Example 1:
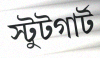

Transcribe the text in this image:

স্টুটগার্ট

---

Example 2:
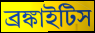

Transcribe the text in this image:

ব্রঙ্কাইটিস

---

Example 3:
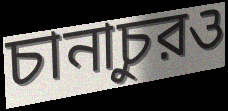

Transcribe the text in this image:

চানাচুরও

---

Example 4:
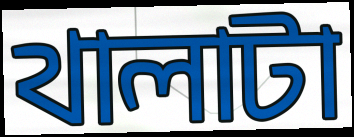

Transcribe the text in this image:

থালাটা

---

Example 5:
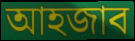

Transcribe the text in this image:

আহজাব